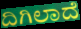
ದಿಗಿಲಾದೆ